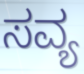
ಸವ್ಯ